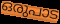
ഒരുപാട